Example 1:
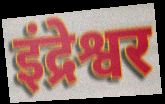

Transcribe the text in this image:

इंद्रेश्वर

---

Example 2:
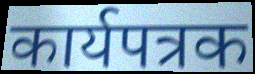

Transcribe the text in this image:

कार्यपत्रक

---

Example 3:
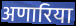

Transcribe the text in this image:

अणारिया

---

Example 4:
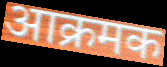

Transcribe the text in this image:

आक्रमक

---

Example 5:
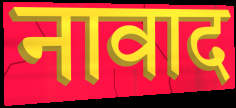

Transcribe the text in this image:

नावाद